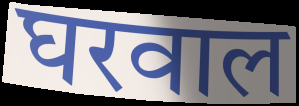
घरवाल